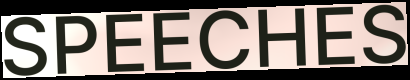
SPEECHES